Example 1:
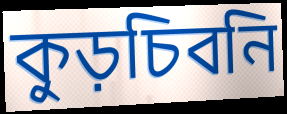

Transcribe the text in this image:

কুড়চিবনি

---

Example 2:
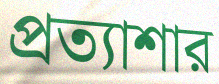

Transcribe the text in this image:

প্রত্যাশার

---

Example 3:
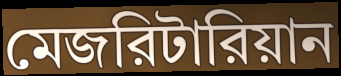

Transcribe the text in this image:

মেজরিটারিয়ান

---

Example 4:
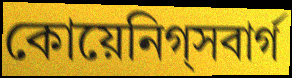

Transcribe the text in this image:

কোয়েনিগ্সবার্গ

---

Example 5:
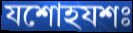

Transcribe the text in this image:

যশোহযশঃ